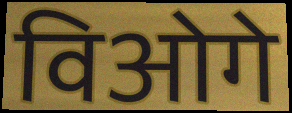
विओगे